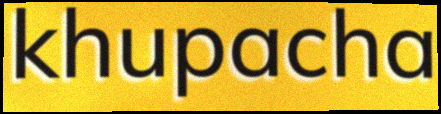
khupacha